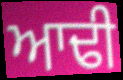
ਆਢੀ